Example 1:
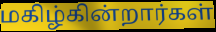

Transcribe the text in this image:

மகிழ்கின்றார்கள்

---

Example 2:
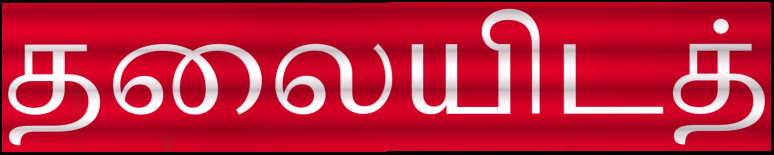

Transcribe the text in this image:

தலையிடத்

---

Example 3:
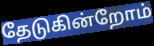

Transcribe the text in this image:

தேடுகின்றோம்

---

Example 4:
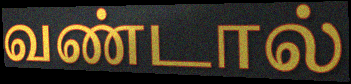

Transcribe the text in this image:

வண்டால்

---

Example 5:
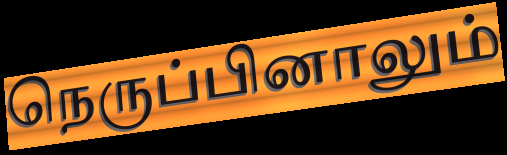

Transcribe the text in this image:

நெருப்பினாலும்